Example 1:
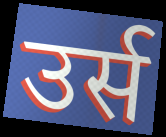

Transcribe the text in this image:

उर्स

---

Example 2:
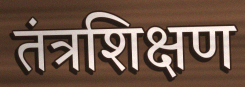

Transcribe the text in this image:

तंत्रशिक्षण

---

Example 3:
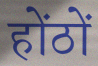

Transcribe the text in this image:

होंठों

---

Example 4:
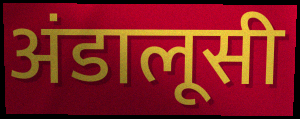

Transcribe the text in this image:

अंडालूसी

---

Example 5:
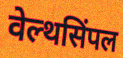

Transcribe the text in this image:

वेल्थसिंपल